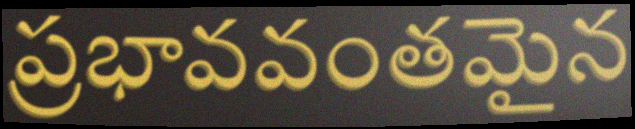
ప్రభావవంతమైన